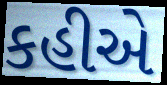
કહીએ